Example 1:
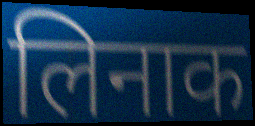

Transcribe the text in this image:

लिनाक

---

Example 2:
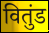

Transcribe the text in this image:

वितुंड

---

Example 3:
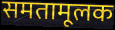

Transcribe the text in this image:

समतामूलक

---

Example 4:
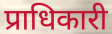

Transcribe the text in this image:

प्राधिकारी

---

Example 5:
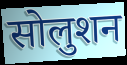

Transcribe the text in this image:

सोलुशन